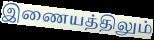
இணையத்திலும்